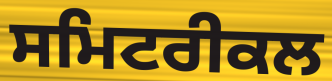
ਸਮਿਟਰੀਕਲ